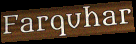
Farquhar